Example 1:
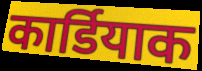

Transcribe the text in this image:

कार्डियाक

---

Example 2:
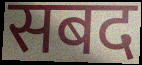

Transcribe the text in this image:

सबद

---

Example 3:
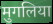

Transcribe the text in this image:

मुगलिया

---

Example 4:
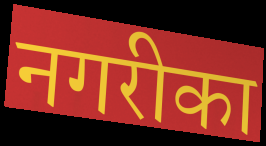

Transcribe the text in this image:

नगरीका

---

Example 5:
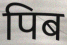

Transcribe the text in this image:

पिब